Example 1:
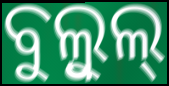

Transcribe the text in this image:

ବୁଲ୍ବୁଲ୍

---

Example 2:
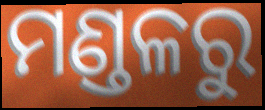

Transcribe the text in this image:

ମଣ୍ଡଳରୁ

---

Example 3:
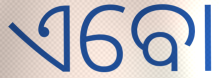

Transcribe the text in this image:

ଏବୋ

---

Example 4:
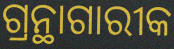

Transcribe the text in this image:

ଗ୍ରନ୍ଥାଗାରୀକ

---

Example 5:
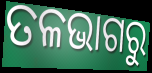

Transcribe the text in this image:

ତଳଭାଗରୁ